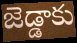
జెడ్డాకు